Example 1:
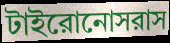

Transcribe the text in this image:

টাইরোনোসরাস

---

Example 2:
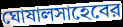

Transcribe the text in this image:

ঘোষালসাহেবের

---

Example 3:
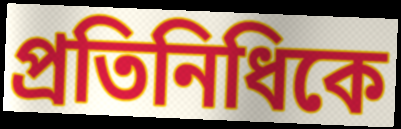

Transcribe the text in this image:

প্রতিনিধিকে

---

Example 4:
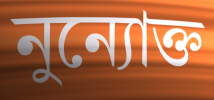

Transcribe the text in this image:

নুন্যোক্ত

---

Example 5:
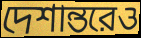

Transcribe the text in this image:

দেশান্তরেও